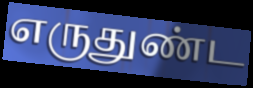
எருதுண்ட